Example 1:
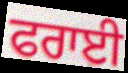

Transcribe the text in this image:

ਫਰਾਈ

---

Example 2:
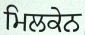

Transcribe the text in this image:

ਮਿਲਕੇਨ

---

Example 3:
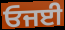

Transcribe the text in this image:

ਓਜਈ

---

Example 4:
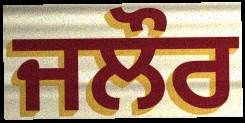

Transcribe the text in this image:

ਜਲੌਰ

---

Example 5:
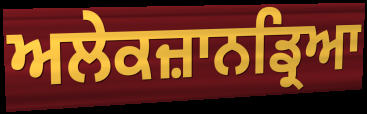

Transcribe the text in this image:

ਅਲੇਕਜ਼ਾਨਡ੍ਰਿਆ